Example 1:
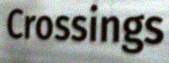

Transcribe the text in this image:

Crossings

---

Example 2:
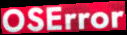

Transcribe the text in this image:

OSError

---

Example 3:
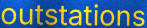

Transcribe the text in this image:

outstations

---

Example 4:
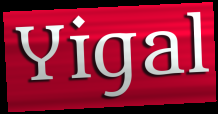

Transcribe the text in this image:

Yigal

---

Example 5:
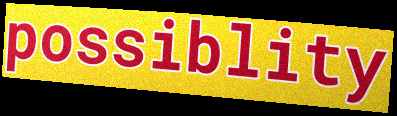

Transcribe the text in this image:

possiblity